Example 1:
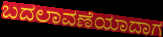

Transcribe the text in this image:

ಬದಲಾವಣೆಯಾದಾಗ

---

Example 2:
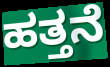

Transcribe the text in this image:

ಹತ್ತನೆ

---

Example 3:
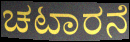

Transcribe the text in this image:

ಚಟಾರನೆ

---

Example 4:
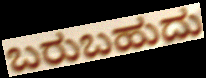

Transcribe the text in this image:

ಬರುಬಹುದು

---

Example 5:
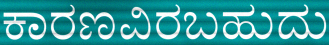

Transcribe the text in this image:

ಕಾರಣವಿರಬಹುದು